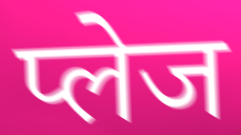
प्‍लेज